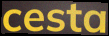
cesta